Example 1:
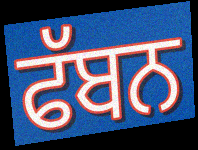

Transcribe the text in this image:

ਫੱਬਨ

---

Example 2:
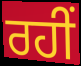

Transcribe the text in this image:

ਰਹੀਂ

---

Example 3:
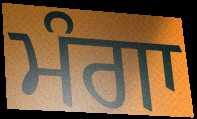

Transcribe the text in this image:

ਮੰਗਾ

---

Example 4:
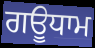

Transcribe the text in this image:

ਗਊਧਾਮ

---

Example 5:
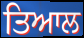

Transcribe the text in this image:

ਤਿਆਲ